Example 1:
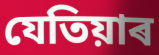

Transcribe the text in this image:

যেতিয়াৰ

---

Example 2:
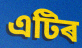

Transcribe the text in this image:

এটিৰ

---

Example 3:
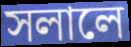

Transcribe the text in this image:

সলালে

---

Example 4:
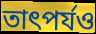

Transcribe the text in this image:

তাৎপৰ্যও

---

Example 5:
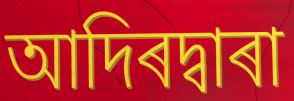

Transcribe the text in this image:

আদিৰদ্বাৰা